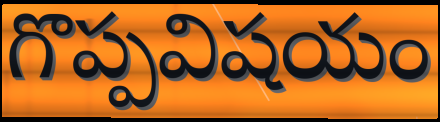
గొప్పవిషయం